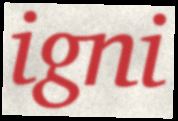
igni